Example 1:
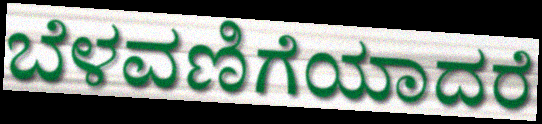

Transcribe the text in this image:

ಬೆಳವಣಿಗೆಯಾದರೆ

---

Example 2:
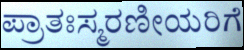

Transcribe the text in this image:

ಪ್ರಾತಃಸ್ಮರಣೀಯರಿಗೆ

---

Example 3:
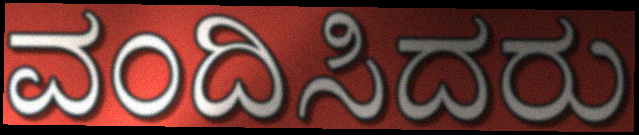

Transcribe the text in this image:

ವಂದಿಸಿದರು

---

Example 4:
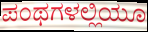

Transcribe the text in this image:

ಪಂಥಗಳಲ್ಲಿಯೂ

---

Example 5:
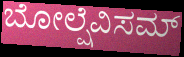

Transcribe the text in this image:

ಬೋಲ್ಷೆವಿಸಮ್